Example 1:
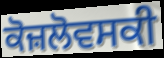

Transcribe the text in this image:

ਕੋਜ਼ਲੋਵਸਕੀ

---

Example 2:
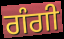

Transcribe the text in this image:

ਗੰਗੀ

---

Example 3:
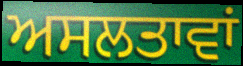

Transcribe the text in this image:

ਅਸਲਤਾਵਾਂ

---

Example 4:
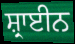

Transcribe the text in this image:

ਸ਼੍ਰਾਈਨ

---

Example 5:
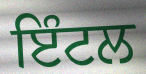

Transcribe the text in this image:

ਇੰਟਲ